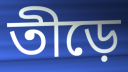
তীড়ে